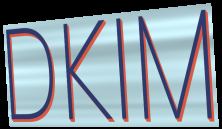
DKIM